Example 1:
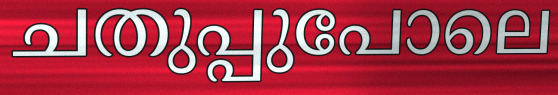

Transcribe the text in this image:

ചതുപ്പുപോലെ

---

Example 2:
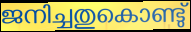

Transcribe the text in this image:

ജനിച്ചതുകൊണ്ടു്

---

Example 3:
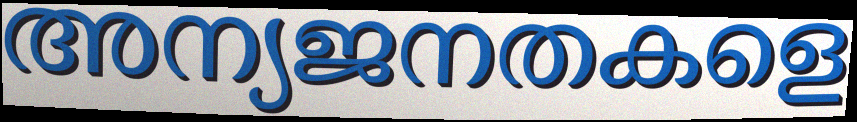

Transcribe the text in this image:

അന്യജനതകളെ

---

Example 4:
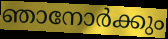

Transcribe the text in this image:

ഞാനോർക്കും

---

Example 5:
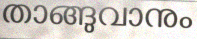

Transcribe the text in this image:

താങ്ങുവാനും